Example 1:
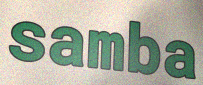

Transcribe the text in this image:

samba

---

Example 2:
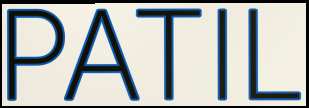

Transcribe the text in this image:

PATIL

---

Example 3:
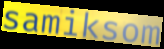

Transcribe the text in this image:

samiksom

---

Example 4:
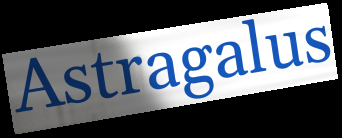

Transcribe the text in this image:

Astragalus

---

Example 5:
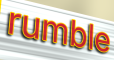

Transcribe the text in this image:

rumble